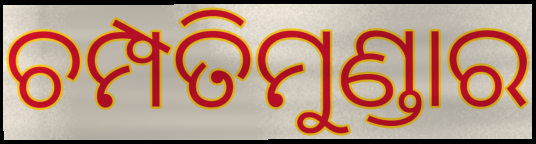
ଚମ୍ପତିମୁଣ୍ଡାର